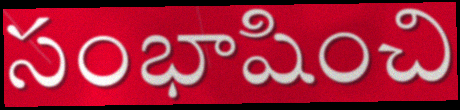
సంభాషించి